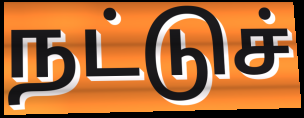
நட்டுச்